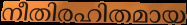
നീതിരഹിതമായ